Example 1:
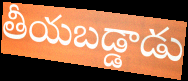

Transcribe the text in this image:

తీయబడ్డాడు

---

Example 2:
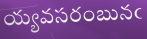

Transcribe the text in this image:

య్యవసరంబునఁ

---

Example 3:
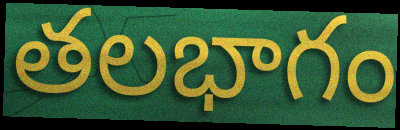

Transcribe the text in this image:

తలభాగం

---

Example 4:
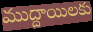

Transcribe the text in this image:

ముద్దాయిలకు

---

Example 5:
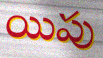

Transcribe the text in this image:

యిపు